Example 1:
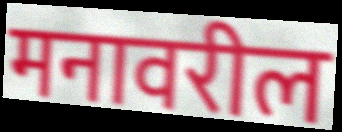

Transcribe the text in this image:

मनावरील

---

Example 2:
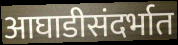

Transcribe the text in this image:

आघाडीसंदर्भात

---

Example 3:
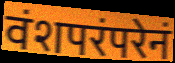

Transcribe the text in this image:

वंशपरंपरेनं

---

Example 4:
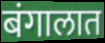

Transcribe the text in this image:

बंगालात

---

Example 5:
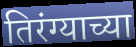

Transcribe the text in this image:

तिरंग्याच्या